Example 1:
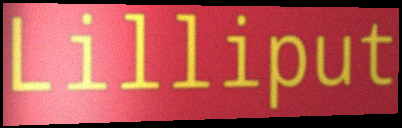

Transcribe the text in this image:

Lilliput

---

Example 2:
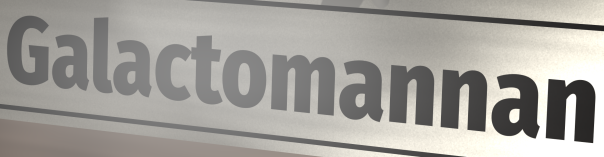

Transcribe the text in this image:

Galactomannan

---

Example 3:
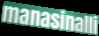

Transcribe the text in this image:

manasinalli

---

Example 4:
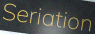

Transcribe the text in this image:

Seriation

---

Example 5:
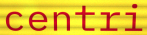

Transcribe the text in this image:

centri